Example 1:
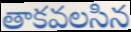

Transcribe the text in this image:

తాకవలసిన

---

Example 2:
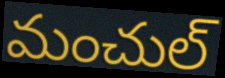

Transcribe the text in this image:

మంచుల్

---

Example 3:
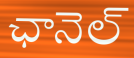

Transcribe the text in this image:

ఛానెల్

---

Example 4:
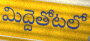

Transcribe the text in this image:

మిద్దెతోటలో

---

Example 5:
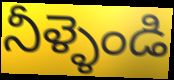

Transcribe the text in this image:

నీళ్ళెండి